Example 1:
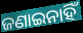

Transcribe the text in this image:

ଜଣାଇନାହିଁ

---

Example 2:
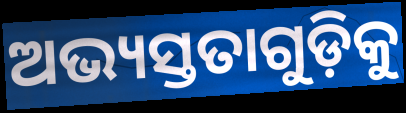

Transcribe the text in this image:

ଅଭ୍ୟସ୍ତତାଗୁଡ଼ିକୁ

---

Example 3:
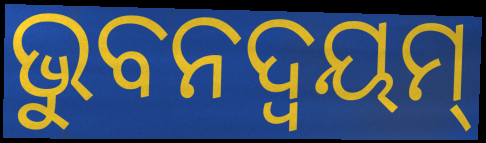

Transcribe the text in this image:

ଭୁବନଦ୍ଵୟମ୍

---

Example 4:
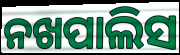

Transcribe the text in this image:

ନଖପାଲିସ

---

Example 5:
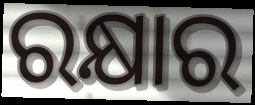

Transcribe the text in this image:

ରକ୍ଷାର